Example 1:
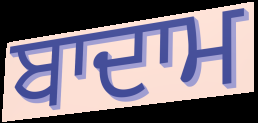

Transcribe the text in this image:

ਬਾਦਾਮ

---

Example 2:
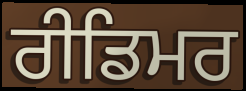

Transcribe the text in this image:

ਰੀਡਿਮਰ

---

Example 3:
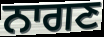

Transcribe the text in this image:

ਨਾਗਣ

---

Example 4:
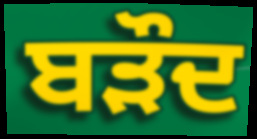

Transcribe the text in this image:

ਬੜੌਦ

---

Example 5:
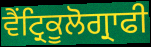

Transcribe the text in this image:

ਵੈਂਟ੍ਰਿਕੂਲੋਗ੍ਰਾਫੀ